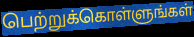
பெற்றுக்கொள்ளுங்கள்